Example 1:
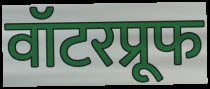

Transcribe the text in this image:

वॉटरप्रूफ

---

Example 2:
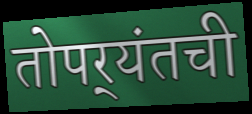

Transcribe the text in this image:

तोपर्यंतची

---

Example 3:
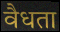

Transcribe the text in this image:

वैधता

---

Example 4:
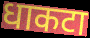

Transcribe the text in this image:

धाकटा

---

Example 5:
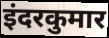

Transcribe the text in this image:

इंदरकुमार